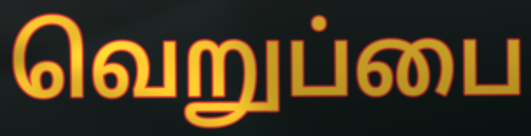
வெறுப்பை